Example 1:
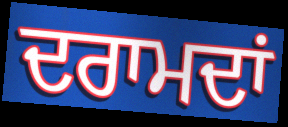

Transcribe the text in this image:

ਦਰਾਮਦਾਂ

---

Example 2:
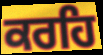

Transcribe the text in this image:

ਕਰਹਿ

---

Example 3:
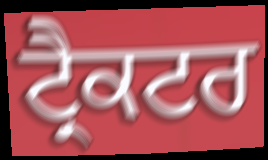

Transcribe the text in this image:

ਟ੍ਰੈਕਟਰ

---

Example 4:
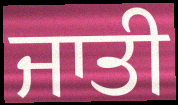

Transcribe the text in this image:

ਜਾਤੀ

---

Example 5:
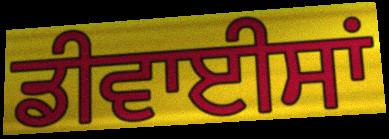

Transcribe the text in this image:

ਡੀਵਾਈਸਾਂ